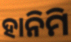
ହାନିମି